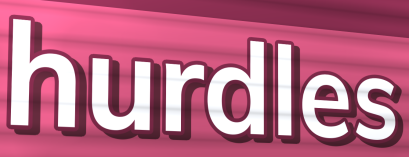
hurdles